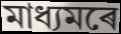
মাধ্যমৰে